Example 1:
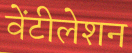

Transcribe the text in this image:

वेंटीलेशन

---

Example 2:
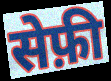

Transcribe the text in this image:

सेफ़ी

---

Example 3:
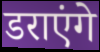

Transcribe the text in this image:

डराएंगे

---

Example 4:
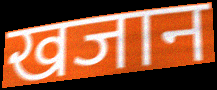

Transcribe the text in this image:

खजान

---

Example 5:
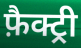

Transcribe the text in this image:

फ़ैक्ट्री